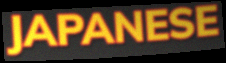
JAPANESE